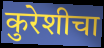
कुरेशीचा